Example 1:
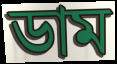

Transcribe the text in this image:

ডাম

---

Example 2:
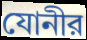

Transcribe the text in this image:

যোনীর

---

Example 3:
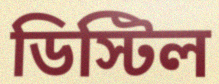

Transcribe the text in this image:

ডিস্টিল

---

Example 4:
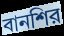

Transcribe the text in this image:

বানশির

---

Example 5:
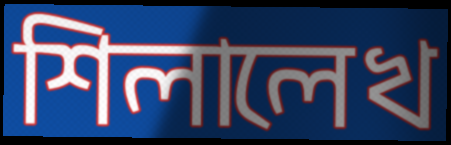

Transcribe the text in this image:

শিলালেখ